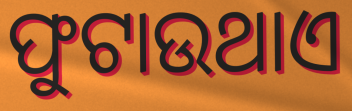
ଫୁଟାଉଥାଏ